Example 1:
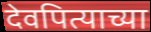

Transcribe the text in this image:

देवपित्याच्या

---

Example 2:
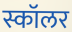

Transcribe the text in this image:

स्कॉलर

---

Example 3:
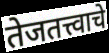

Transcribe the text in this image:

तेजतत्त्वाचे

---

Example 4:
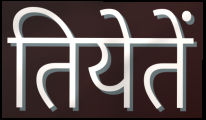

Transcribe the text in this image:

तियेतें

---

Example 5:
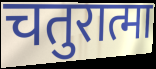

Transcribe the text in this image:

चतुरात्मा